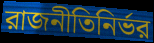
রাজনীতিনির্ভর